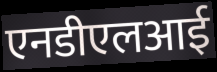
एनडीएलआई